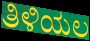
ತಿಳಿಯಲ